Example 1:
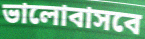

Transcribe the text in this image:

ভালোবাসবে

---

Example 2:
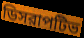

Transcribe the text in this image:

ডিসরাপটিভ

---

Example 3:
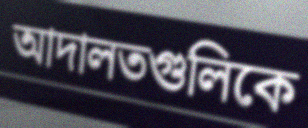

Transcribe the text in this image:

আদালতগুলিকে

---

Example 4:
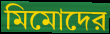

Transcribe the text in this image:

মিমোদের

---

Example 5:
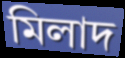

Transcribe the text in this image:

মিলাদ